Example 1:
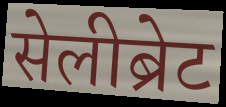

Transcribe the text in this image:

सेलीब्रेट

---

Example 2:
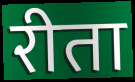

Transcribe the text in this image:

रीता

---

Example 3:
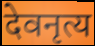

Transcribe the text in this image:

देवनृत्य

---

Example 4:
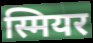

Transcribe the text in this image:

स्मियर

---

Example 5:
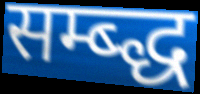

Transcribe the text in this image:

सम्ब्द्ध